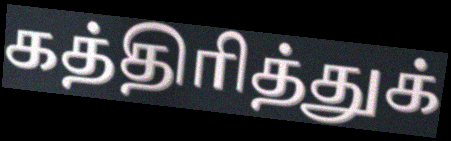
கத்திரித்துக்